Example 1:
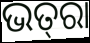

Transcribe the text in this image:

ଭତ୍‌ରା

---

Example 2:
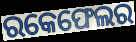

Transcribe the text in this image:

ରକେଫେଲର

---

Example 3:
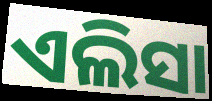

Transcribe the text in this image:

ଏଲିସା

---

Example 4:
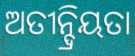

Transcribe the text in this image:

ଅତୀନ୍ଦ୍ରିୟତା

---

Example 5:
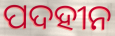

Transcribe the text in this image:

ପଦହୀନ